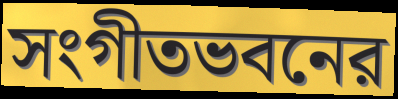
সংগীতভবনের